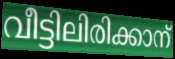
വീട്ടിലിരിക്കാന്